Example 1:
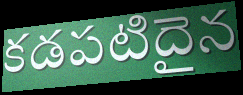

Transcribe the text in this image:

కడపటిదైన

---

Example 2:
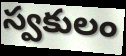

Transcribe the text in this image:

స్వకులం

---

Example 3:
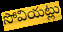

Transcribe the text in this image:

సోవియట్లు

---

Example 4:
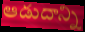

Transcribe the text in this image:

ఆడుదాన్ని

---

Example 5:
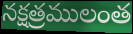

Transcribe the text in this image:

నక్షత్రములంత